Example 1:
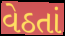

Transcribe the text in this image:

વેઠતાં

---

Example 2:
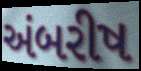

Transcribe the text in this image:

અંબરીષ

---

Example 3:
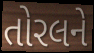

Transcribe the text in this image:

તોરલને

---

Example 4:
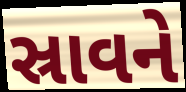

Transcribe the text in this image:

સ્રાવને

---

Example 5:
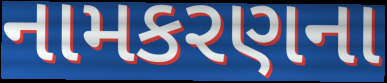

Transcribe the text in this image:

નામકરણના